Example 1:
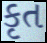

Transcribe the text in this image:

કૃત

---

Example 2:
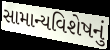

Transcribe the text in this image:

સામાન્યવિશેષનું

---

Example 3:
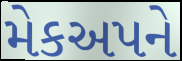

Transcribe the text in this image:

મેકઅપને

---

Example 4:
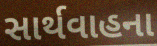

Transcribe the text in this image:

સાર્થવાહના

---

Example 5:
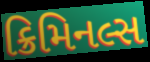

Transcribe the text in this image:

ક્રિમિનલ્સ